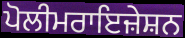
ਪੋਲੀਮਰਾਇਜ਼ੇਸ਼ਨ